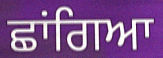
ਛਾਂਗਿਆ